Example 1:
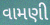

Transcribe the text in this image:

વામણી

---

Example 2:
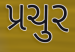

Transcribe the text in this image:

પ્રચુર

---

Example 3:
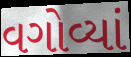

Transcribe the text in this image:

વગોવ્યાં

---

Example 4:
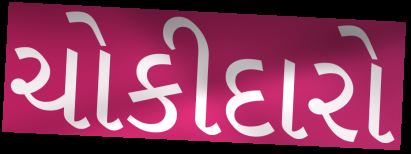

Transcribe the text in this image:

ચોકીદારો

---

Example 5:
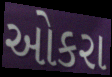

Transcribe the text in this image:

ઓકરા